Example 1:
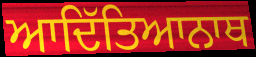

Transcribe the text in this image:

ਆਦਿੱਤਿਆਨਾਥ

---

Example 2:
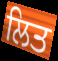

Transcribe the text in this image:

ਲਿਤ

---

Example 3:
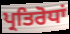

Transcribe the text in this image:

ਪ੍ਰਤਿਰੋਧਾਂ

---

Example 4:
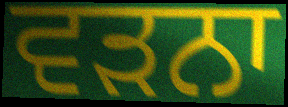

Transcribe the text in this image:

ਵੜਨਾ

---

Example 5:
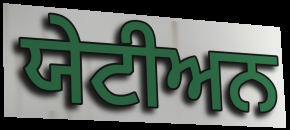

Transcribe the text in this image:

ਯੇਟੀਅਨ